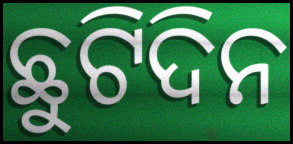
ଛୁଟିଦିନ